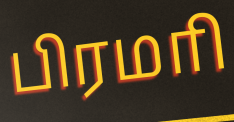
பிரமரி